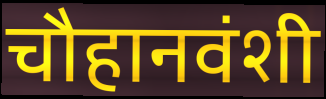
चौहानवंशी